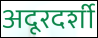
अदूरदर्शी